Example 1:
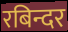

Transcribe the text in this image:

रबिन्दर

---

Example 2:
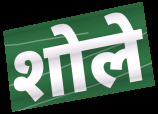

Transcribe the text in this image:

शोले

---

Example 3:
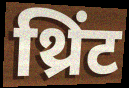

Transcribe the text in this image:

थ्रिंट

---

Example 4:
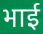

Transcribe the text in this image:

भार्ई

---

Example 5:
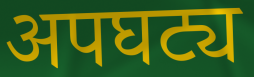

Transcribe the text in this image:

अपघट्य